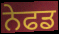
ਨੇਫਡ